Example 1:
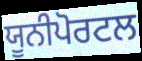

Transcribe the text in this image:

ਯੂਨੀਪੋਰਟਲ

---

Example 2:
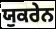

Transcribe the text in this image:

ਯੁਕਰੇਨ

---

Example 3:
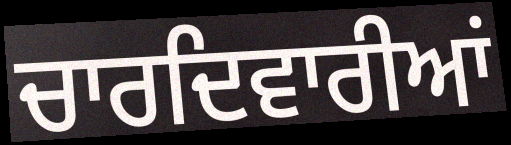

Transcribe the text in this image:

ਚਾਰਦਿਵਾਰੀਆਂ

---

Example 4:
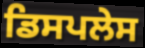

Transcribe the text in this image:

ਡਿਸਪਲੇਸ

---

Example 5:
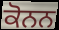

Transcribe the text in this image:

ਕੋਨਨ